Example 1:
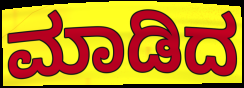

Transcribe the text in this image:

ಮಾಡಿದ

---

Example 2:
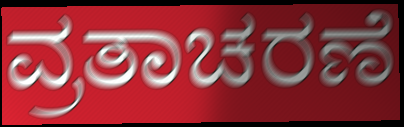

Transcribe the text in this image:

ವ್ರತಾಚರಣೆ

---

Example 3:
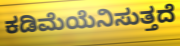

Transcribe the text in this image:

ಕಡಿಮೆಯೆನಿಸುತ್ತದೆ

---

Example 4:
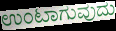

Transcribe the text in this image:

ಉಂಟಾಗುವುದು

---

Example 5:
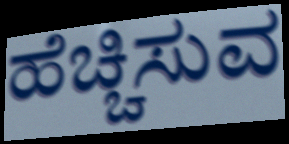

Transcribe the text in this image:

ಹೆಚ್ಚಿಸುವ